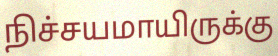
நிச்சயமாயிருக்கு